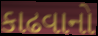
કાઢવાનો